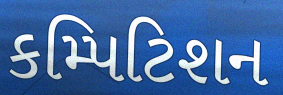
કમ્પિટિશન